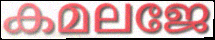
കമലജേ